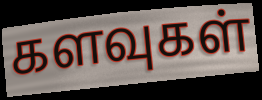
களவுகள்